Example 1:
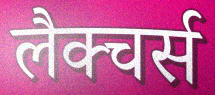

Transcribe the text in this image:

लैक्चर्स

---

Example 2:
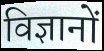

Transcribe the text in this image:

विज्ञानों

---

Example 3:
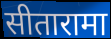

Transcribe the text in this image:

सीतारामा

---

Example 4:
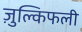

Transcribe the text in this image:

ज़ुल्किफली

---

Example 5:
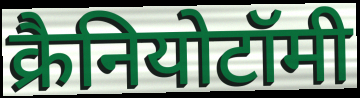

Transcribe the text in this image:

क्रैनियोटॉमी